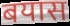
बयास